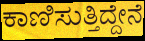
ಕಾಣಿಸುತ್ತಿದ್ದೇನೆ